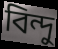
বিন্দু